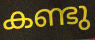
കണ്ടു